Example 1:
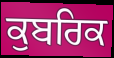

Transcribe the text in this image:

ਕੁਬਰਿਕ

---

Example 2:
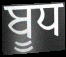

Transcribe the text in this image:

ਬੂਧ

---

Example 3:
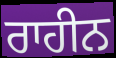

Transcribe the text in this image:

ਰਾਹੀਨ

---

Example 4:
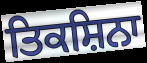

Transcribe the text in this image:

ਤਿਕਸ਼ਿਨਾ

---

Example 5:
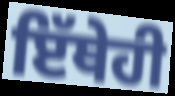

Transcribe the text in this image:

ਇੱਥੇਹੀ